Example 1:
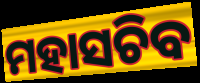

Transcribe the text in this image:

ମହାସଚିବ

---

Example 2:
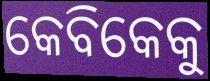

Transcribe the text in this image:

କେବିକେକୁ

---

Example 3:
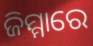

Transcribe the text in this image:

ଜିମ୍ମାରେ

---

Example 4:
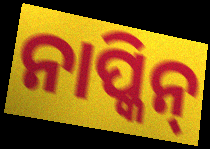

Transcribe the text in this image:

ନାପ୍କିନ୍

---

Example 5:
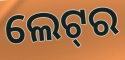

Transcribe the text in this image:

ଲେଟ୍‌ର